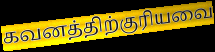
கவனத்திற்குரியவை